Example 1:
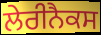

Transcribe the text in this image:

ਲੇਰੀਨੈਕਸ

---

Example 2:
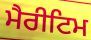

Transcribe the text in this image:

ਮੈਰੀਟਿਮ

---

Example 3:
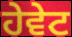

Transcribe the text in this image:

ਹੇਵੇਟ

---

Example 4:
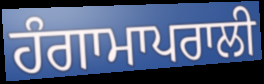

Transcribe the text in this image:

ਹੰਗਾਮਾਪਰਾਲੀ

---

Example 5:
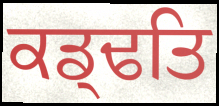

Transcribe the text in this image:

ਕਡ੍ਢਤਿ